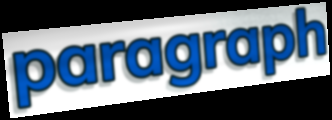
paragraph